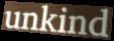
unkind